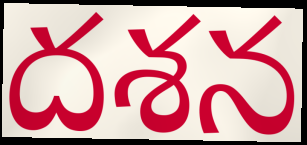
దశన